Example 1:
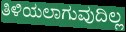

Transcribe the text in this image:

ತಿಳಿಯಲಾಗುವುದಿಲ್ಲ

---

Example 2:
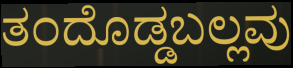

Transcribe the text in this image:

ತಂದೊಡ್ಡಬಲ್ಲವು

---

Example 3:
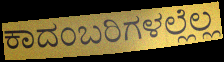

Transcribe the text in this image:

ಕಾದಂಬರಿಗಳಲ್ಲೆಲ್ಲ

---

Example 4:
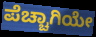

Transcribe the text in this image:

ಪೆಚ್ಚಾಗಿಯೇ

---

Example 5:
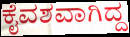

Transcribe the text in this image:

ಕೈವಶವಾಗಿದ್ದ